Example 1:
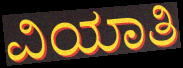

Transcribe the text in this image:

ವಿಯಾತಿ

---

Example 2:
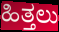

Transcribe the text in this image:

ಹಿತ್ತಲು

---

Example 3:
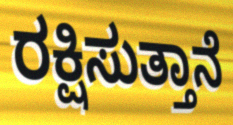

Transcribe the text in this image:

ರಕ್ಷಿಸುತ್ತಾನೆ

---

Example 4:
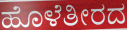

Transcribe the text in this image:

ಹೊಳೆತೀರದ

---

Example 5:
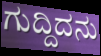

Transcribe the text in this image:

ಗುದ್ದಿದನು